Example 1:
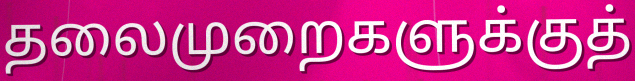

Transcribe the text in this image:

தலைமுறைகளுக்குத்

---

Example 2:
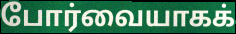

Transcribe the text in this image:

போர்வையாகக்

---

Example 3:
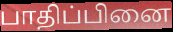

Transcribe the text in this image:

பாதிப்பினை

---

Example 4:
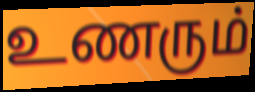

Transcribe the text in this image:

உணரும்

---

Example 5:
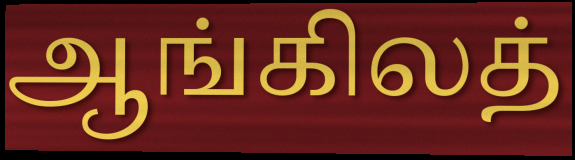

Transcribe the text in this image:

ஆங்கிலத்